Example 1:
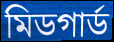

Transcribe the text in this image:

মিডগার্ড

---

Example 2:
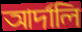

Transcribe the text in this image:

আর্দালি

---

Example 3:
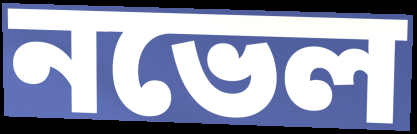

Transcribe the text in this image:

নভেল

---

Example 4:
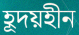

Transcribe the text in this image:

হূদয়হীন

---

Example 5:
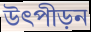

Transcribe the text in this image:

উৎপীড়ন